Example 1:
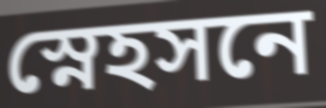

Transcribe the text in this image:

স্নেহসনে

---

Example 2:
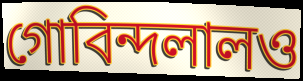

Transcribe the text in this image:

গোবিন্দলালও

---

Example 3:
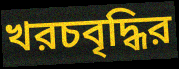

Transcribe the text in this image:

খরচবৃদ্ধির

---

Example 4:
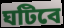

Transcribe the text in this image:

ঘটিবে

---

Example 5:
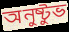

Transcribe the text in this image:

অনুষ্টুভ